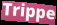
Trippe